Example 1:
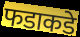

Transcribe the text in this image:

फडाकडे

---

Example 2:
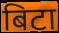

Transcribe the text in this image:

बिटा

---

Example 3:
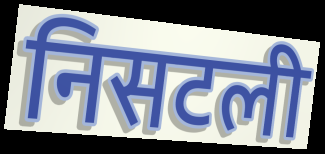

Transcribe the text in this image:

निसटली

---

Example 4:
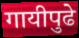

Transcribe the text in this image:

गायीपुढे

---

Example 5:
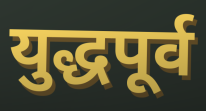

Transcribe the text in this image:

युद्धपूर्व